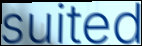
suited